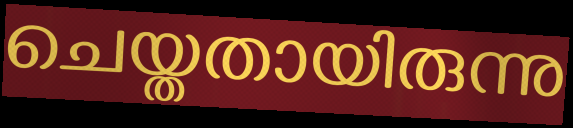
ചെയ്തതായിരുന്നു